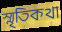
স্মৃতিকথা